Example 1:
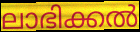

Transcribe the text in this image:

ലാഭിക്കൽ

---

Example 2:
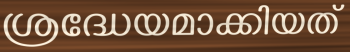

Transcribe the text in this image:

ശ്രദ്ധേയമാക്കിയത്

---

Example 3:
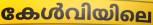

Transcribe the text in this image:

കേൾവിയിലെ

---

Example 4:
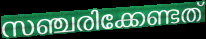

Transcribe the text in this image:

സഞ്ചരിക്കേണ്ടത്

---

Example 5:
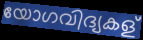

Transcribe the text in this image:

യോഗവിദ്യകള്